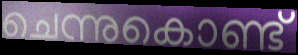
ചെന്നുകൊണ്ട്